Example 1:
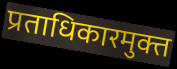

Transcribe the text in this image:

प्रताधिकारमुक्त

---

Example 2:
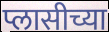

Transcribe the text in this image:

प्लासीच्या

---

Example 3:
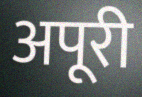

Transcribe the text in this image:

अपूरी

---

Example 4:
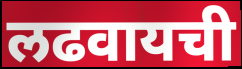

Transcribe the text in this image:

लढवायची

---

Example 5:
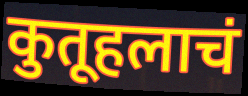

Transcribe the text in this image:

कुतूहलाचं